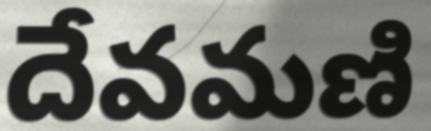
దేవమణి